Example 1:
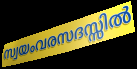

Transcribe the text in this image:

സ്വയംവരസദസ്സിൽ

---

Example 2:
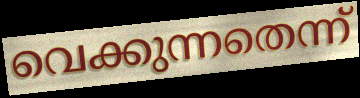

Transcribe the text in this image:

വെക്കുന്നതെന്ന്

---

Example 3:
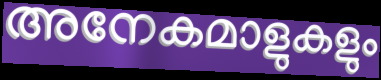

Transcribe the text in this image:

അനേകമാളുകളും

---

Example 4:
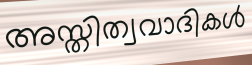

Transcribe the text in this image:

അസ്തിത്വവാദികൾ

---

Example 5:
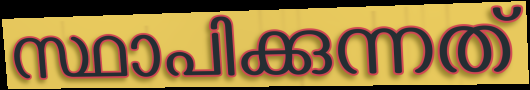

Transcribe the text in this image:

സ്ഥാപിക്കുന്നത്